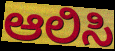
ಆಲಿಸಿ